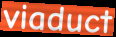
viaduct